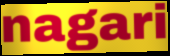
nagari